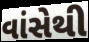
વાંસેથી